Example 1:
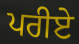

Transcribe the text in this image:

ਪਰੀਏ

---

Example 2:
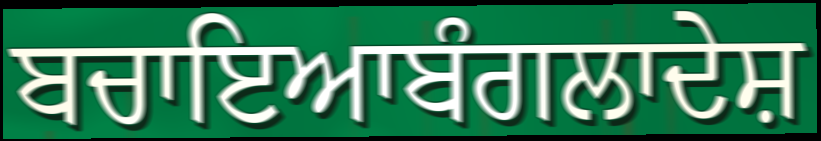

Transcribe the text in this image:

ਬਚਾਇਆਬੰਗਲਾਦੇਸ਼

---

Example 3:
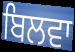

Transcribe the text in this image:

ਬਿਲਵਾ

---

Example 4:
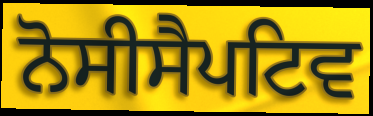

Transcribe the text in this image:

ਨੋਸੀਸੈਪਟਿਵ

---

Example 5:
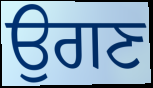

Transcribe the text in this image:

ਉਗਣ